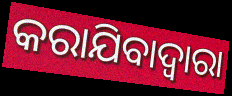
କରାଯିବାଦ୍ୱାରା